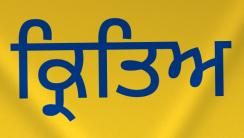
ਕ੍ਰਿਤਿਅ